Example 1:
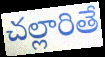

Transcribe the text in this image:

చల్లారితే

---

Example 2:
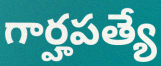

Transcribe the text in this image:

గార్హపత్యే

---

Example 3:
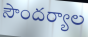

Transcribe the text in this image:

సౌందర్యాల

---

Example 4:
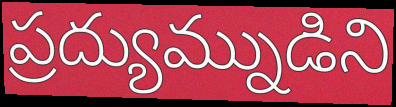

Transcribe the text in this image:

ప్రద్యుమ్నుడిని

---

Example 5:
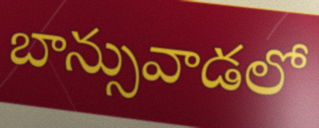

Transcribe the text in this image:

బాన్సువాడలో